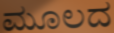
ಮೂಲದ